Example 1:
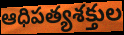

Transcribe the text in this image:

ఆధిపత్యశక్తుల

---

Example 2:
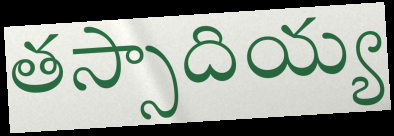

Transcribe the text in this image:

తస్సాదియ్య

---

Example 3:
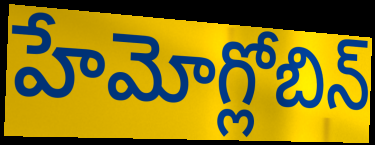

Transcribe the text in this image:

హేమోగ్లోబిన్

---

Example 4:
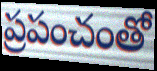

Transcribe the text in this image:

ప్రపంచంతో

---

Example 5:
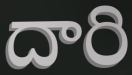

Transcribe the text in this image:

దారి